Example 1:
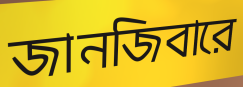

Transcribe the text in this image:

জানজিবারে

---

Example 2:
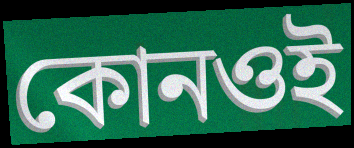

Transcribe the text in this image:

কোনওই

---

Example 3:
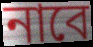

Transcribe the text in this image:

নাবে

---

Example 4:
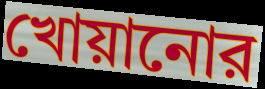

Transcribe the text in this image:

খোয়ানোর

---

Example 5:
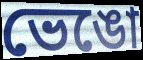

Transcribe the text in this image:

ভেঙো